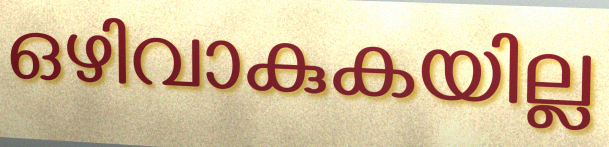
ഒഴിവാകുകയില്ല